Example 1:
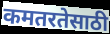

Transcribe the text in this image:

कमतरतेसाठी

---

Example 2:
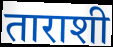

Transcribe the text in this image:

ताराशी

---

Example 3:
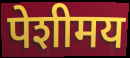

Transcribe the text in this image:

पेशीमय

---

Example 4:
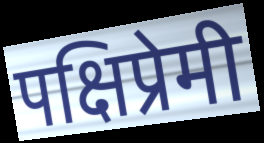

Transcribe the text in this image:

पक्षिप्रेमी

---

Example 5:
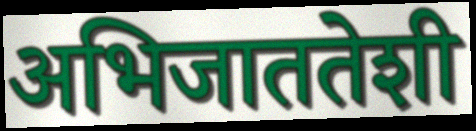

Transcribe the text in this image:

अभिजाततेशी